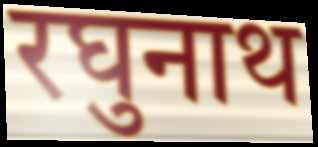
रघुनाथ